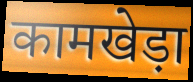
कामखेड़ा